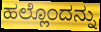
ಹಲ್ಲೊಂದನ್ನು